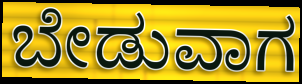
ಬೇಡುವಾಗ